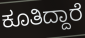
ಕೂತಿದ್ದಾರೆ